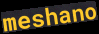
meshano